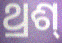
ଥ୍ରଶ୍